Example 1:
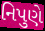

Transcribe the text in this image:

નિપુણે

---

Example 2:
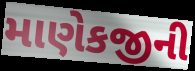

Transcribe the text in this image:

માણેકજીની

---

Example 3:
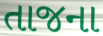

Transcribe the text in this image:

તાજના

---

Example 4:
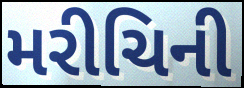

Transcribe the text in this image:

મરીચિની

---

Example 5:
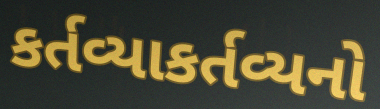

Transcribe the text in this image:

કર્તવ્યાકર્તવ્યનો